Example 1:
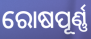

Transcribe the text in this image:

ରୋଷପୂର୍ଣ୍ଣ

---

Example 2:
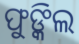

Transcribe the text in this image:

ଫୁଙ୍କିଲ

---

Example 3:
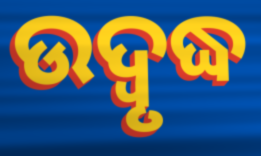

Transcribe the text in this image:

ଉଦ୍ବୃଦ୍ଧ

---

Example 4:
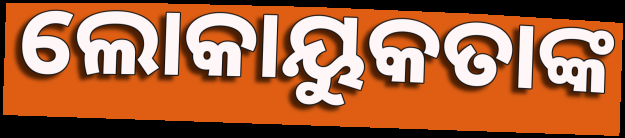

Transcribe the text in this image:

ଲୋକାୟୁକତାଙ୍କ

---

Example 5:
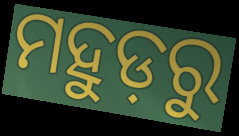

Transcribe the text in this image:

ମହୁଡ଼ରୁ